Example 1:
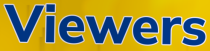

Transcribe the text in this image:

Viewers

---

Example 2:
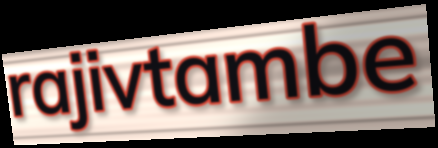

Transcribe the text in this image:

rajivtambe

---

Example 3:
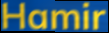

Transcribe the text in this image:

Hamir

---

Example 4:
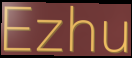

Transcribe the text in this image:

Ezhu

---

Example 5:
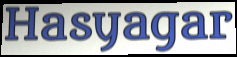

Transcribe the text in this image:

Hasyagar